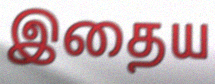
இதைய